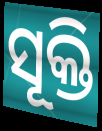
ସୂକ୍ତି